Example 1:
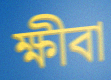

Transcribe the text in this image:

ক্ষীবা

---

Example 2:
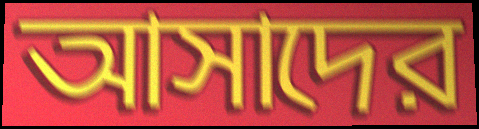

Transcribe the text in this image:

আসাদের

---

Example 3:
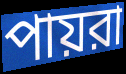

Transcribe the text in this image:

পায়রা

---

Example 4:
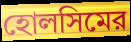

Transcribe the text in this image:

হোলসিমের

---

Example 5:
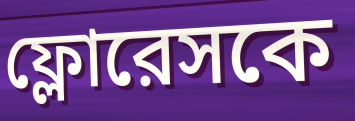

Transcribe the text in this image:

ফ্লোরেসকে